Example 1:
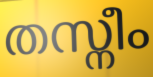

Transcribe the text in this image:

തസ്നീം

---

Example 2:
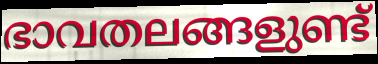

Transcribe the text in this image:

ഭാവതലങ്ങളുണ്ട്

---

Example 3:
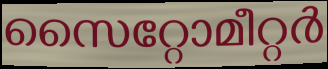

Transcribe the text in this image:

സൈറ്റോമീറ്റർ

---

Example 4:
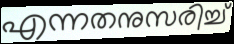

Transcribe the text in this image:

എന്നതനുസരിച്ച്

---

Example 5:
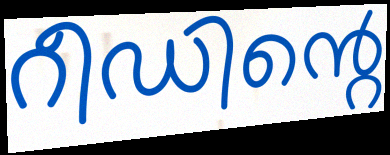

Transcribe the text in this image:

റീഡിന്റെ